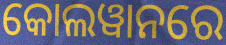
କୋଲୱାନରେ